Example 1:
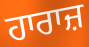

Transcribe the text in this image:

ਹਾਰਾਜ਼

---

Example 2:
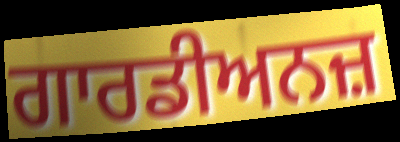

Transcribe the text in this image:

ਗਾਰਡੀਅਨਜ਼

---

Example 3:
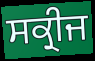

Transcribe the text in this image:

ਸਕ੍ਰੀਜ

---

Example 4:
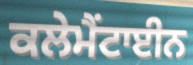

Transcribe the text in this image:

ਕਲੇਮੈਂਟਾਈਨ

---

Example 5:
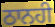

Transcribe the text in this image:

ਠਾਨਹੀ